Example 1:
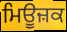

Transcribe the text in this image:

ਮਿਊਜ਼ਕ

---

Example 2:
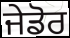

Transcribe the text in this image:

ਜੇਡੋਰ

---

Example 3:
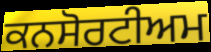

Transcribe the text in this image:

ਕਨਸੋਰਟੀਅਮ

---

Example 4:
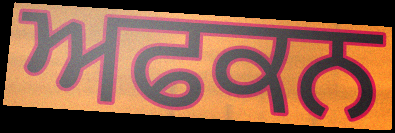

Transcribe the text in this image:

ਅਫਕਨ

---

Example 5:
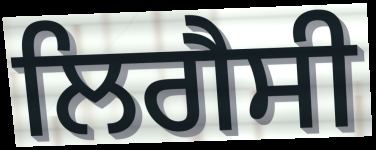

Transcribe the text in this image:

ਲਿਗੈਸੀ